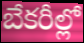
బేకరీల్లో